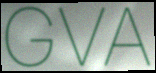
GVA